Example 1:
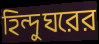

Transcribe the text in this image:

হিন্দুঘরের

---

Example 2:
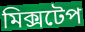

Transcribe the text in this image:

মিক্সটেপ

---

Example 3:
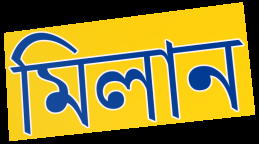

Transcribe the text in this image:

মিলান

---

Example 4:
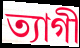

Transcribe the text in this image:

ত্যাগী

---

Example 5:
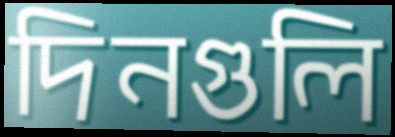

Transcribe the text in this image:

দিনগুলি